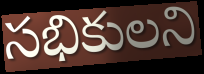
సభికులని